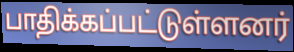
பாதிக்கப்பட்டுள்ளனர்